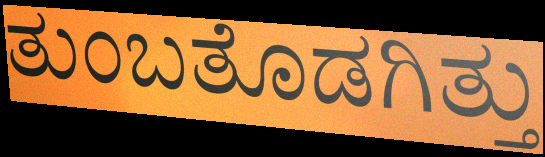
ತುಂಬತೊಡಗಿತ್ತು